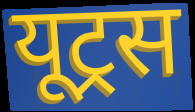
यूट्रस